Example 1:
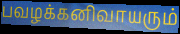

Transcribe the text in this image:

பவழக்கனிவாயரும்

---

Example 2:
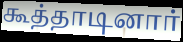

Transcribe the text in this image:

கூத்தாடினார்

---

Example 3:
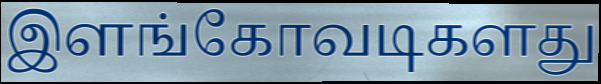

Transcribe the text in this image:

இளங்கோவடிகளது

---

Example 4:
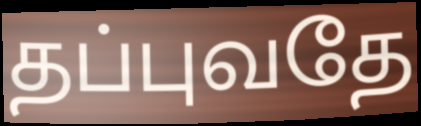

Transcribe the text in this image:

தப்புவதே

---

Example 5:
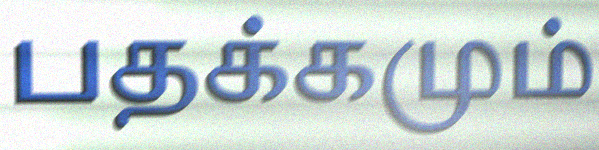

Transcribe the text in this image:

பதக்கமும்